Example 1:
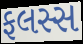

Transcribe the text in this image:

ફલસ્સ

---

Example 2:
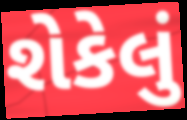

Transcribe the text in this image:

શેકેલું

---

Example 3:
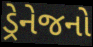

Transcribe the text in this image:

ડ્રેનેજનો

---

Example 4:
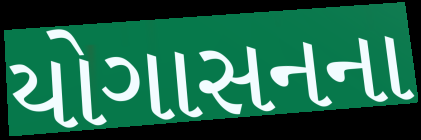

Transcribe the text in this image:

યોગાસનના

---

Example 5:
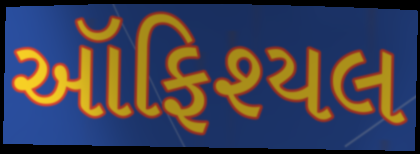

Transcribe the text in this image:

ઑફિશ્યલ